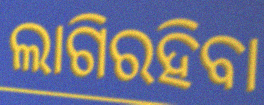
ଲାଗିରହିବା